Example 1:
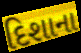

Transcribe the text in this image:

દિશાના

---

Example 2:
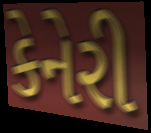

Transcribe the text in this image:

કેનેરી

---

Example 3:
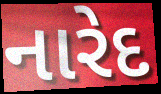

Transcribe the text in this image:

નારેદ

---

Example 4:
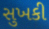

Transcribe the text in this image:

સુખકી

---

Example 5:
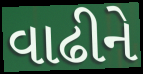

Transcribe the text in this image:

વાઢીને